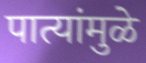
पात्यांमुळे